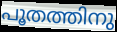
പൂതത്തിനു